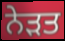
ਨੇੜਤ